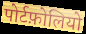
पोर्टफ़ोलियो